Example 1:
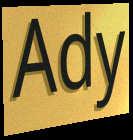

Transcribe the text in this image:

Ady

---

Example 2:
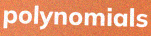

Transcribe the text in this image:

polynomials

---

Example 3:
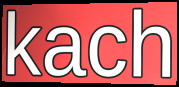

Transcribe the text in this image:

kach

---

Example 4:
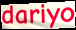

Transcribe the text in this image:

dariyo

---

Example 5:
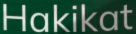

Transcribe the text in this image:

Hakikat